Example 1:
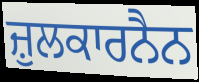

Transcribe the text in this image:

ਜ਼ੁਲਕਾਰਨੈਨ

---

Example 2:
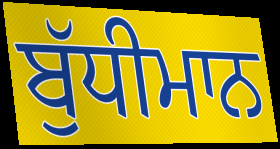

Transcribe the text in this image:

ਬੁੱਧੀਮਾਨ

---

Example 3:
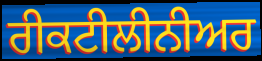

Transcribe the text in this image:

ਰੀਕਟੀਲੀਨੀਅਰ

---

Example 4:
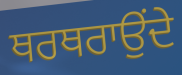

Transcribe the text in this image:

ਥਰਥਰਾਉਂਦੇ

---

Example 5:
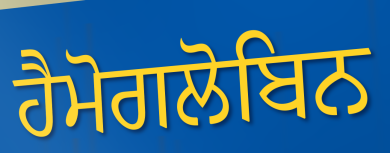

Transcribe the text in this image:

ਹੈਮੋਗਲੋਬਿਨ